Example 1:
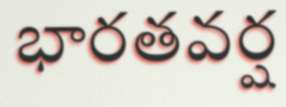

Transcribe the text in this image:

భారతవర్ష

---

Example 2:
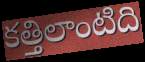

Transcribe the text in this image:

కత్తిలాంటిది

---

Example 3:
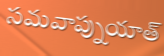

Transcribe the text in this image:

సమవాప్నుయాత్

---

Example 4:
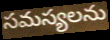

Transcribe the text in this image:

సమస్యలను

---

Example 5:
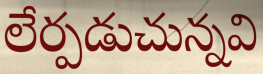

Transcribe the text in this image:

లేర్పడుచున్నవి